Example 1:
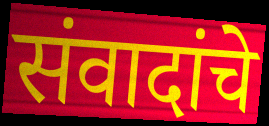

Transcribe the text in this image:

संवादांचे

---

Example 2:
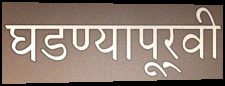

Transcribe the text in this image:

घडण्यापूर्वी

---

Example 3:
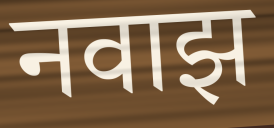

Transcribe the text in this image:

नवाझ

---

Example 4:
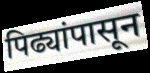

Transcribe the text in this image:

पिढ्यांपासून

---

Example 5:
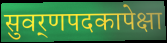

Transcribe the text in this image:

सुवर्णपदकापेक्षा